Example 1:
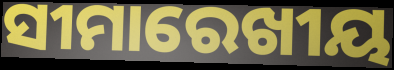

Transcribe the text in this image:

ସୀମାରେଖୀୟ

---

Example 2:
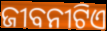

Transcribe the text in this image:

ଜୀବନୀଟିଏ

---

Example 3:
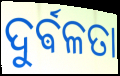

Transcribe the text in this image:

ଦୁର୍ଵଳତା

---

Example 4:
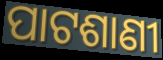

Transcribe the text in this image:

ପାଟଶାଣୀ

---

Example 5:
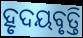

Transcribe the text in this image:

ହୃଦୟବୃତ୍ତି